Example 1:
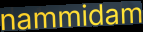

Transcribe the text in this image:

nammidam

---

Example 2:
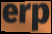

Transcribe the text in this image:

erp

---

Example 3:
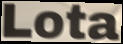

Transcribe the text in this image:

Lota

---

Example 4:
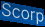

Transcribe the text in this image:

Scorp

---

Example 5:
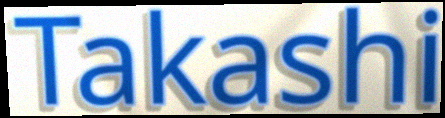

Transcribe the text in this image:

Takashi